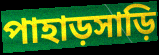
পাহাড়সাড়ি